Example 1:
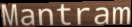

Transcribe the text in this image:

Mantram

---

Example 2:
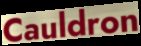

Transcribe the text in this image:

Cauldron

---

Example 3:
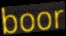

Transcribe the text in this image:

boor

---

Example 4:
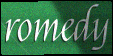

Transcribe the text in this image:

romedy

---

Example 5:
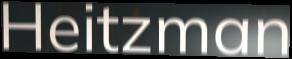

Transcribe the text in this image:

Heitzman